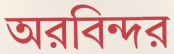
অরবিন্দর